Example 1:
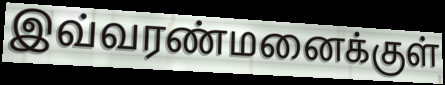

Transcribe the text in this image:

இவ்வரண்மனைக்குள்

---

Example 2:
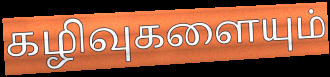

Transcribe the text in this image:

கழிவுகளையும்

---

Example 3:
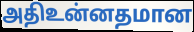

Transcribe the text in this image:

அதிஉன்னதமான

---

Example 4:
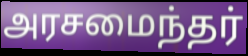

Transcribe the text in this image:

அரசமைந்தர்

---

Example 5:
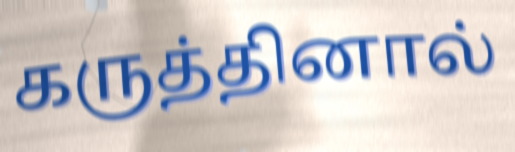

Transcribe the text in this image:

கருத்தினால்